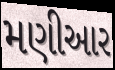
મણીઆર